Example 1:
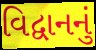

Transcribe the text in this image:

વિદ્વાનનું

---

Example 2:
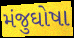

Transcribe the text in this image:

મંજુઘોષા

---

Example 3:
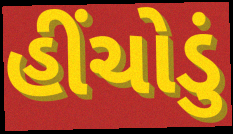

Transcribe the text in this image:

હીંચોડું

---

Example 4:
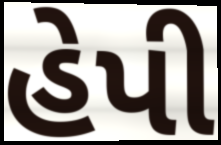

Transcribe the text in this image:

હેપી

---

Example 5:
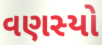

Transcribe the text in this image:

વણસ્યો